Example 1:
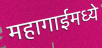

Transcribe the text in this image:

महागाईमध्ये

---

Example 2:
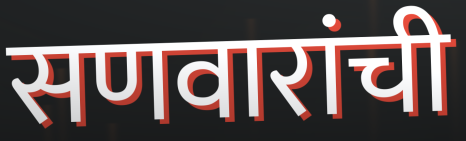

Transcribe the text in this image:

सणवारांची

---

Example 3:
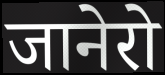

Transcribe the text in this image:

जानेरो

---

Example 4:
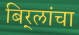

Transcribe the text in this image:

बिर्लांचा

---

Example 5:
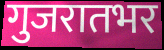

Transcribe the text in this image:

गुजरातभर